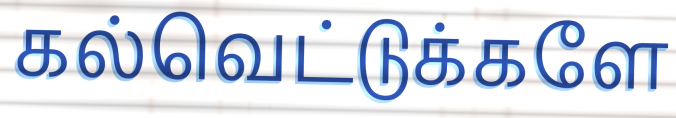
கல்வெட்டுக்களே